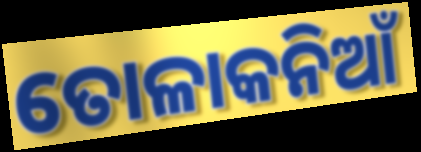
ତୋଳାକନିଆଁ